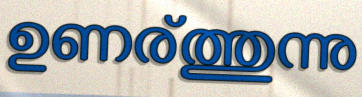
ഉണര്ത്തുന്നു